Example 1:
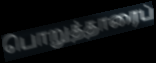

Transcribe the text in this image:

பொறுத்தாரைப்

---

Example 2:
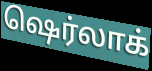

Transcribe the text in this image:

ஷெர்லாக்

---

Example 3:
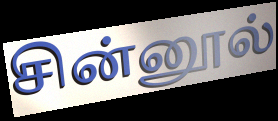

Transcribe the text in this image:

சின்னூல்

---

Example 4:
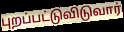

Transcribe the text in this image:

புறப்பட்டுவிடுவார்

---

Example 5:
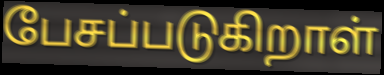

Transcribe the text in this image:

பேசப்படுகிறாள்